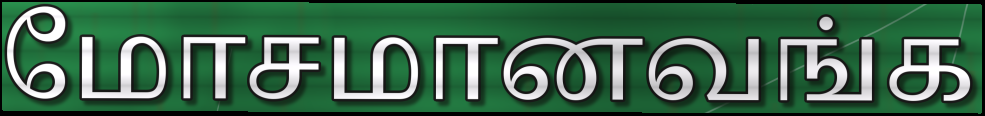
மோசமானவங்க